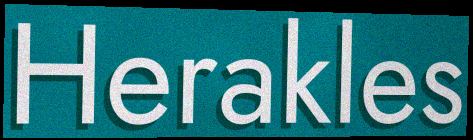
Herakles